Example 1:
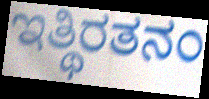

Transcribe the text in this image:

ಇತ್ಥಿರತನಂ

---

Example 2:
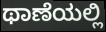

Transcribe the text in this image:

ಥಾಣೆಯಲ್ಲಿ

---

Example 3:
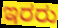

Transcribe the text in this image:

ಇರರು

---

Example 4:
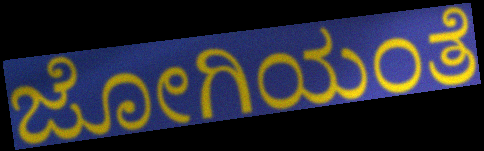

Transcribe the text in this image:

ಜೋಗಿಯಂತೆ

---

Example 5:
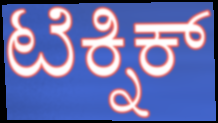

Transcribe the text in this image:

ಟೆಕ್ನಿಕ್